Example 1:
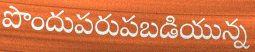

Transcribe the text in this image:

పొందుపరుపబడియున్న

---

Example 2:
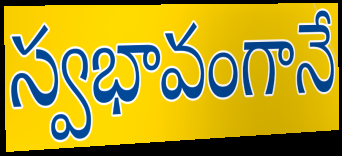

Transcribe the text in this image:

స్వభావంగానే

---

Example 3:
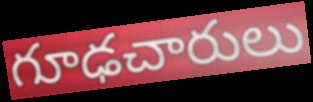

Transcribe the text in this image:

గూఢచారులు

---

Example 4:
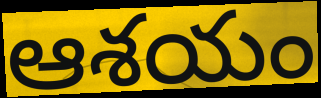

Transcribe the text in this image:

ఆశయం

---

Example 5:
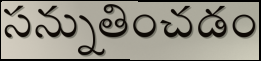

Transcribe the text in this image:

సన్నుతించడం